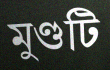
মুণ্ডটি